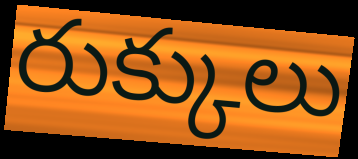
రుక్కులు